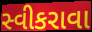
સ્વીકરાવા